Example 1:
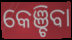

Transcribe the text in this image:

କେଞ୍ଚିବା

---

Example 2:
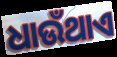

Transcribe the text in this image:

ଧାଉଁଥାଏ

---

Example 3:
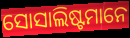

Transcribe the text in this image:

ସୋସାଲିଷ୍ଟମାନେ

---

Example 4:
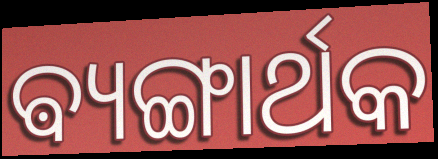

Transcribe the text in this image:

ଵ୍ୟଙ୍ଗାର୍ଥକ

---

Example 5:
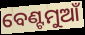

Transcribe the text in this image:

ବେଣ୍ଟମୁଆଁ